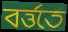
বর্ত্ততে